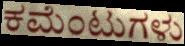
ಕಮೆಂಟುಗಳು